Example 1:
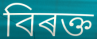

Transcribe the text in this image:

বিৰক্ত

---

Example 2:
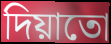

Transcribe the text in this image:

দিয়াতো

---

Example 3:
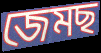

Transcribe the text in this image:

জেমছ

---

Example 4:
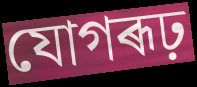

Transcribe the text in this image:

যোগৰূঢ়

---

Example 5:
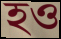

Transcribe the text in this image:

হও